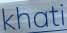
khati